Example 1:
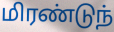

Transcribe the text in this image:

மிரண்டுந்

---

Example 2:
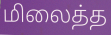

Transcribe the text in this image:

மிலைத்த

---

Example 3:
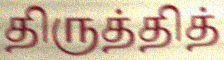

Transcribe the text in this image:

திருத்தித்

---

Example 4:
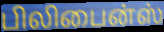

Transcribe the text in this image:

பிலிபைன்ஸ்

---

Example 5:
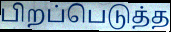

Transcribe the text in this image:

பிறப்பெடுத்த